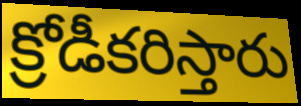
క్రోడీకరిస్తారు